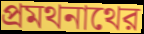
প্রমথনাথের